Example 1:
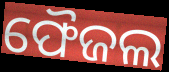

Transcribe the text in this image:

ଫୈଜଲ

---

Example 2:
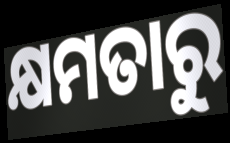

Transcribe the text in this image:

କ୍ଷମତାରୁ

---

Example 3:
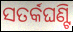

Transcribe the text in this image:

ସତର୍କଘଣ୍ଟି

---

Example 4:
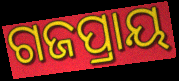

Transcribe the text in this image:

ଗଜପ୍ରାୟ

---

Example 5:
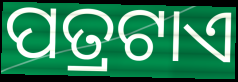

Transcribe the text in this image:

ପତ୍ରଟାଏ